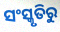
ସଂସ୍କୃତିରୁ